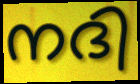
നദി